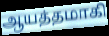
ஆயத்தமாகி